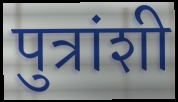
पुत्रांशी